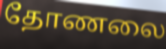
தோணலை